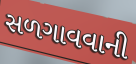
સળગાવવાની